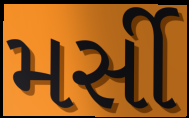
મર્સી